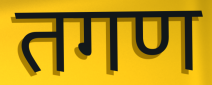
तगण